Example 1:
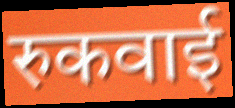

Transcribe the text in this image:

रुकवाई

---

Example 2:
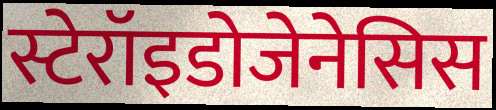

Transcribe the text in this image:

स्टेरॉइडोजेनेसिस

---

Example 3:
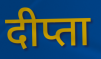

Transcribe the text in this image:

दीप्ता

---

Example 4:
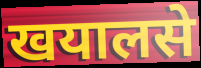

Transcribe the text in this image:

खयालसे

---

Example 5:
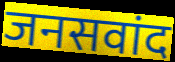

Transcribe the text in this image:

जनसवांद